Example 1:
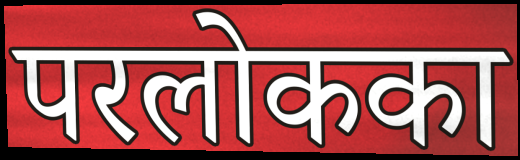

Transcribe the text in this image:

परलोकका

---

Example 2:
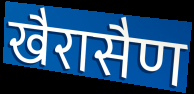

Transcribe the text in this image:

खैरासैण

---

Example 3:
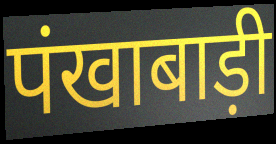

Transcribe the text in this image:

पंखाबाड़ी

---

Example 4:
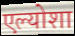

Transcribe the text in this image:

एल्योशा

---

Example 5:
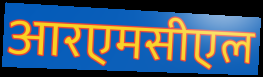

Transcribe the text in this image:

आरएमसीएल